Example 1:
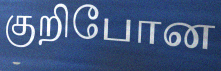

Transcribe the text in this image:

குறிபோன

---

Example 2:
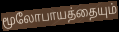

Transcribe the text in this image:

மூலோபாயத்தையும்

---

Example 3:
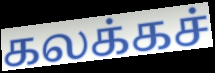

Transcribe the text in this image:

கலக்கச்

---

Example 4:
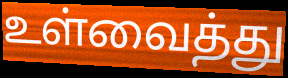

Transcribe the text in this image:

உள்வைத்து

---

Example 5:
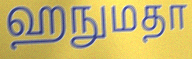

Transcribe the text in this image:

ஹநுமதா